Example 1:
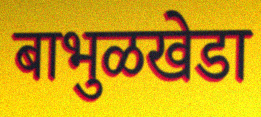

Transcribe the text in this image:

बाभुळखेडा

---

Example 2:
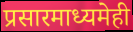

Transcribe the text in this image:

प्रसारमाध्यमेही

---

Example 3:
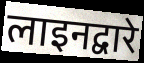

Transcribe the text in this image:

लाइनद्वारे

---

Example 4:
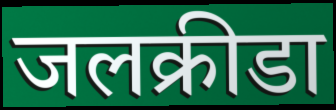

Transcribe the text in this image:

जलक्रीडा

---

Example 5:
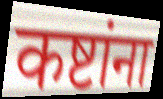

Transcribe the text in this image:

कष्टांना